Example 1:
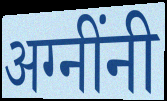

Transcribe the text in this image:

अग्नींनी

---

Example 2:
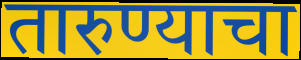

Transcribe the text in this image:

तारुण्याचा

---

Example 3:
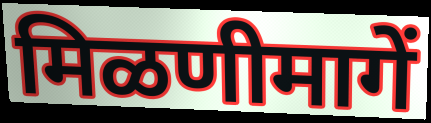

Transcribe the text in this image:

मिळणीमागें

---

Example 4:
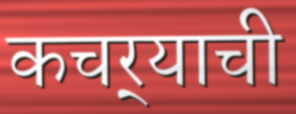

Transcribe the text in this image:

कचर्याची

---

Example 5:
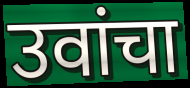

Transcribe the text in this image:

उवांचा